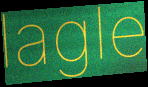
lagle